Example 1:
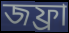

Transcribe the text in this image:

জফ্রা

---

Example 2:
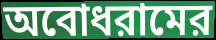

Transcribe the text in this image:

অবোধরামের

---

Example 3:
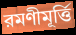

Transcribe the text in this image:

রমণীমূর্ত্তি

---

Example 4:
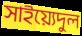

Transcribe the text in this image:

সাইয়্যেদুল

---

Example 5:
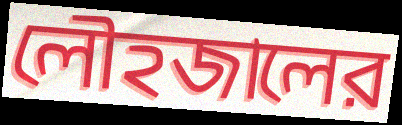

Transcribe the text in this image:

লৌহজালের